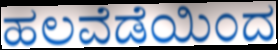
ಹಲವೆಡೆಯಿಂದ